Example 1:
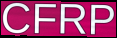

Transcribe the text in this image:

CFRP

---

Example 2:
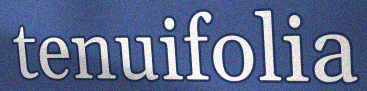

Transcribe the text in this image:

tenuifolia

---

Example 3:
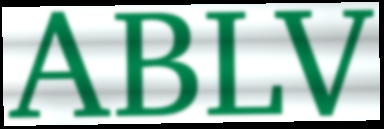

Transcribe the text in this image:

ABLV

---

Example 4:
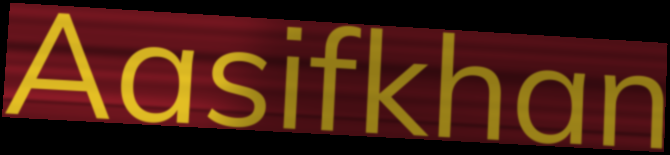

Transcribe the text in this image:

Aasifkhan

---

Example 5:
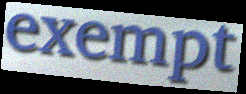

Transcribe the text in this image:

exempt